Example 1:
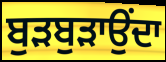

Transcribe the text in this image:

ਬੁੜਬੁੜਾਉਂਦਾ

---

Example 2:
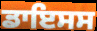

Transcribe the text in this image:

ਡਾਇਸਸ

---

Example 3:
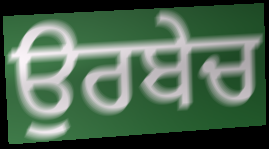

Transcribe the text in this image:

ਉਰਬੇਚ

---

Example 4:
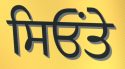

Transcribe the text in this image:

ਸਿਓਂਤੇ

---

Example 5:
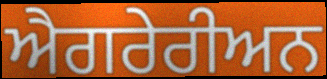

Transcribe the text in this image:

ਐਗਰੇਰੀਅਨ